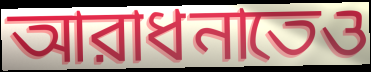
আরাধনাতেও